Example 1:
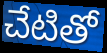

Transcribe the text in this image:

చేటితో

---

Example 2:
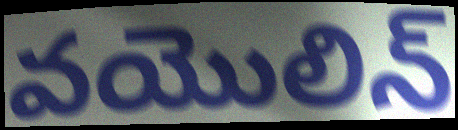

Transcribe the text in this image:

వయొలిన్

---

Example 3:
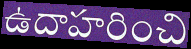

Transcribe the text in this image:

ఉదాహరించి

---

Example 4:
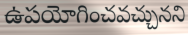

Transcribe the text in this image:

ఉపయోగించవచ్చునని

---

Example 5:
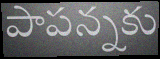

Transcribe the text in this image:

పాపన్నకు